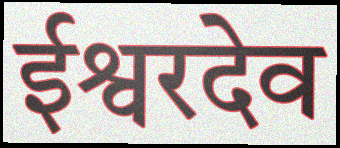
ईश्वरदेव